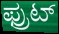
ಫ್ರುಟ್